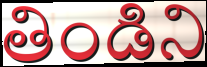
తిండిని